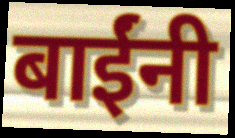
बाईंनी